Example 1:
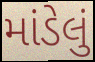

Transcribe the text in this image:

માંડેલું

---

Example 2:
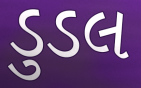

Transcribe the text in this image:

ડુડલ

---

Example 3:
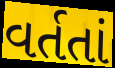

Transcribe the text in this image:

વર્તતાં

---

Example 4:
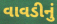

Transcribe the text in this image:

વાવડીનું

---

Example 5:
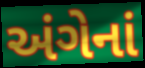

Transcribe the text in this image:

અંગેનાં